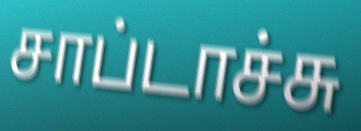
சாப்டாச்சு